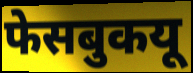
फेसबुकयू